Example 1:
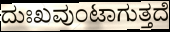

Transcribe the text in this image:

ದುಃಖವುಂಟಾಗುತ್ತದೆ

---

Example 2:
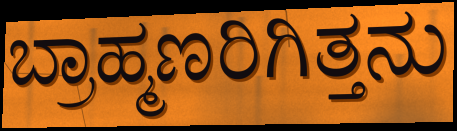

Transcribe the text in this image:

ಬ್ರಾಹ್ಮಣರಿಗಿತ್ತನು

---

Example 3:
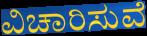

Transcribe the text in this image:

ವಿಚಾರಿಸುವೆ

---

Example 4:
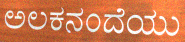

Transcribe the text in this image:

ಅಲಕನಂದೆಯು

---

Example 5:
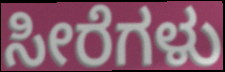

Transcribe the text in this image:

ಸೀರೆಗಳು